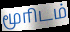
மூரிடம்